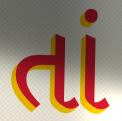
તાં